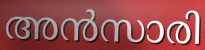
അൻസാരി